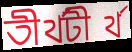
তীর্থটীর্থ